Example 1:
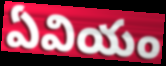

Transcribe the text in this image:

ఏవియం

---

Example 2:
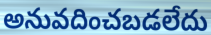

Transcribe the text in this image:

అనువదించబడలేదు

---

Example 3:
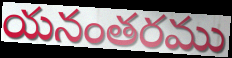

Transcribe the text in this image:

యనంతరము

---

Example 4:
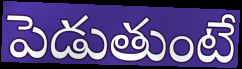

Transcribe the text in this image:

పెడుతుంటే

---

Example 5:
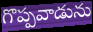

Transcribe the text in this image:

గొప్పవాడును